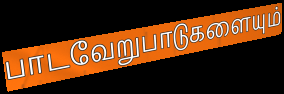
பாடவேறுபாடுகளையும்